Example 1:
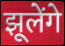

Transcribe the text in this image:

झूलेंगे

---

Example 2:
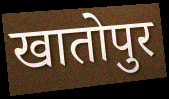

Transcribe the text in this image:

खातोपुर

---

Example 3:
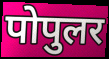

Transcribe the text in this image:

पोपुलर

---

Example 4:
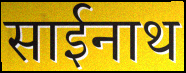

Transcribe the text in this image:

साईनाथ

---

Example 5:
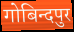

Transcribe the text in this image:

गोबिन्दपुर